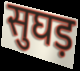
सुघड़